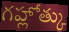
గహ్లోత్కు